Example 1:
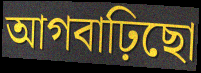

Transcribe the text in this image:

আগবাঢ়িছো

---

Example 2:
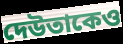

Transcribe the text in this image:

দেউতাকেও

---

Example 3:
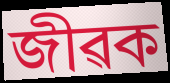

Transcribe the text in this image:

জীৱক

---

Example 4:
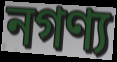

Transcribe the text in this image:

নগণ্য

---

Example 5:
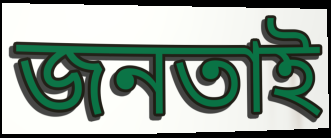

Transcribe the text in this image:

জনতাই